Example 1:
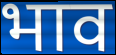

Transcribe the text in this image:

भाव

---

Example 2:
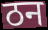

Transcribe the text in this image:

ठन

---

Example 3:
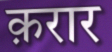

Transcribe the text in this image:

क़रार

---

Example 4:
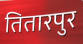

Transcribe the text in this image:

तितारपुर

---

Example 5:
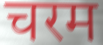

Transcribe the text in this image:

चरम